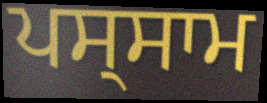
ਪਸ੍ਸਾਮ